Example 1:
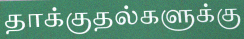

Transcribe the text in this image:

தாக்குதல்களுக்கு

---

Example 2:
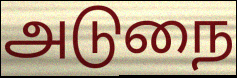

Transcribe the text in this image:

அடுநை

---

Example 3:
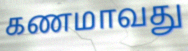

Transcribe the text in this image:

கணமாவது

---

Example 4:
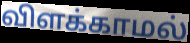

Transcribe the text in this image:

விளக்காமல்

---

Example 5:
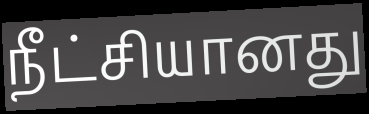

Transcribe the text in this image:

நீட்சியானது